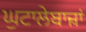
ਘੁਟਾਲੇਬਾਜ਼ਾਂ